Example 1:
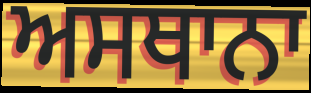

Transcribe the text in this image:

ਅਸਥਾਨਾ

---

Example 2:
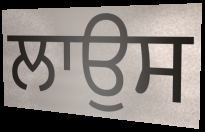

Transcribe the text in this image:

ਲਾਉਸ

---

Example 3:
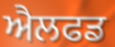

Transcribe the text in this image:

ਐਲਫਡ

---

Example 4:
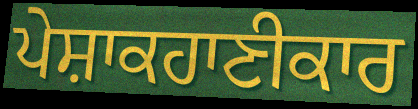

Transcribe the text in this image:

ਪੇਸ਼ਾਕਹਾਣੀਕਾਰ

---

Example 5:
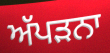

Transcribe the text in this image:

ਅੱਪੜਨਾ